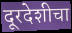
दूरदेशीचा